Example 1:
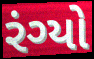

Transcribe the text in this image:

રંગ્યો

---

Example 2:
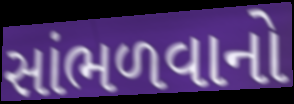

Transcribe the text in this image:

સાંભળવાનો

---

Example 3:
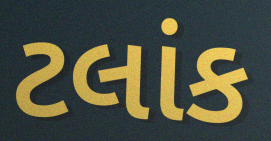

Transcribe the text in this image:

ટલાંક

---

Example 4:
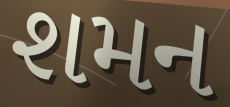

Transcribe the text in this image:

શમન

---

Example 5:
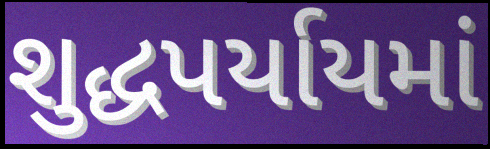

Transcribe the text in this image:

શુદ્ધપર્યાયમાં